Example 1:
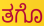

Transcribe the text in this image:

ತಗೊ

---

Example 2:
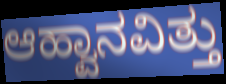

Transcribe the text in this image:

ಆಹ್ವಾನವಿತ್ತು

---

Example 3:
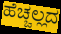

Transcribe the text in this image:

ಹೆಚ್ಚಲ್ಲದ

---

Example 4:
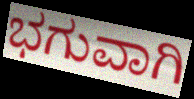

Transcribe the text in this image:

ಭಗುವಾಗಿ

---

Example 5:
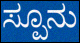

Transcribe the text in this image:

ಸ್ಪೂನು